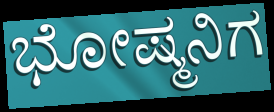
ಭೋಷ್ಮನಿಗ